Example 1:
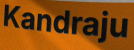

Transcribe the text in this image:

Kandraju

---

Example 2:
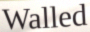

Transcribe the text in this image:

Walled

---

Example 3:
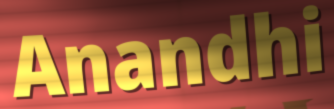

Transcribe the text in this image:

Anandhi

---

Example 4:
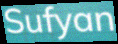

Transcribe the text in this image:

Sufyan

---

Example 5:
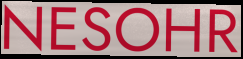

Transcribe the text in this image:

NESOHR